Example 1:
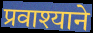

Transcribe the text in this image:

प्रवाश्याने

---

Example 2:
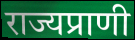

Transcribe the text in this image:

राज्यप्राणी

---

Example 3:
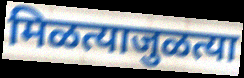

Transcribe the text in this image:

मिळत्याजुळत्या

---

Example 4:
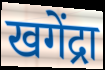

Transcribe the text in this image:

खगेंद्रा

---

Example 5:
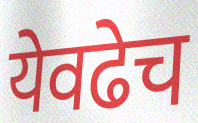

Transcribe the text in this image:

येवढेच